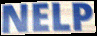
NELP